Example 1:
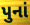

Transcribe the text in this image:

પુનાં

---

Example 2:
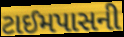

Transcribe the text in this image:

ટાઈમપાસની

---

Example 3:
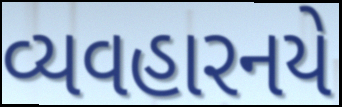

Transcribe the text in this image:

વ્યવહારનયે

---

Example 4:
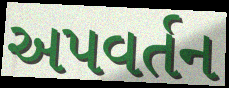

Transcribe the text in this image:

અપવર્તન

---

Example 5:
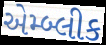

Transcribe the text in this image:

એમ્બ્લીક